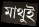
মাথুই